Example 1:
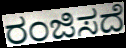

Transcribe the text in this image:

ರಂಜಿಸದೆ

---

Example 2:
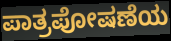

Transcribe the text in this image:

ಪಾತ್ರಪೋಷಣೆಯ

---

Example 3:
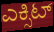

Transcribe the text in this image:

ಎಕ್ಸಿಟ್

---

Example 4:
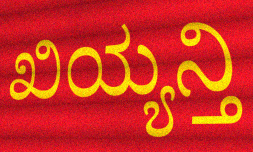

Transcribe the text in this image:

ಖಿಯ್ಯನ್ತಿ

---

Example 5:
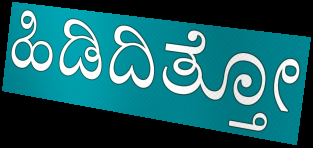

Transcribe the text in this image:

ಹಿಡಿದಿತ್ತೋ